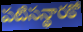
పటిసన్థారకో